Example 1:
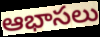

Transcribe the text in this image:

ఆభాసలు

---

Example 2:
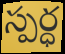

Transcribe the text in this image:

స్పర్ధ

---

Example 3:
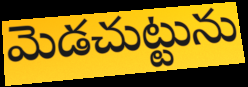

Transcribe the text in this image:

మెడచుట్టును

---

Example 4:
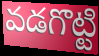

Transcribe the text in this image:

వడగొట్టి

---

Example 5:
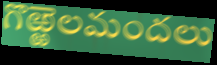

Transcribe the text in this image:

గొఱ్ఱెలమందలు